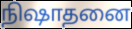
நிஷாதனை